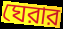
ঘেরার